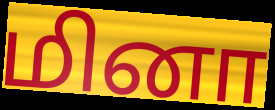
மினா